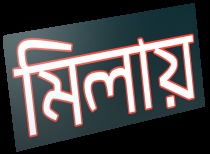
মিলায়